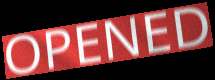
OPENED